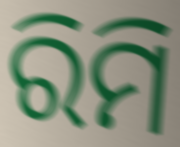
ରିମି